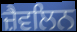
ਜ਼ੈਵਲਿਨ